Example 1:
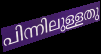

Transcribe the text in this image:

പിന്നിലുള്ളതു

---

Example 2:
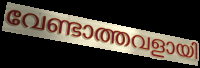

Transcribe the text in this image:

വേണ്ടാത്തവളായി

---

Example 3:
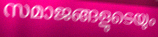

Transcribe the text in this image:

സമാജങ്ങളുടെയും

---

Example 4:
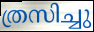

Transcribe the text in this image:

ത്രസിച്ചു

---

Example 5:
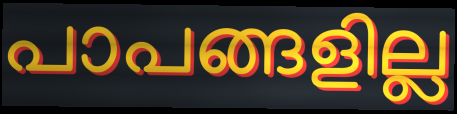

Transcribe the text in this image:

പാപങ്ങളില്ല